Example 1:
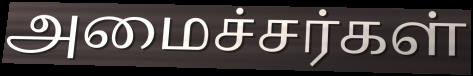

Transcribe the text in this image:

அமைச்சர்கள்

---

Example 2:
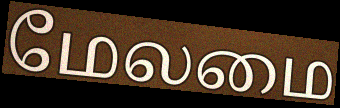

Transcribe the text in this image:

மேலமை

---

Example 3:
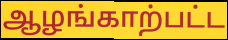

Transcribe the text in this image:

ஆழங்காற்பட்ட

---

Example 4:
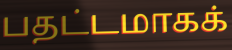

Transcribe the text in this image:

பதட்டமாகக்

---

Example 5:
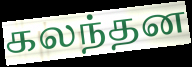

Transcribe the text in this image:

கலந்தன